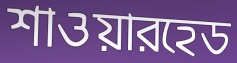
শাওয়ারহেড